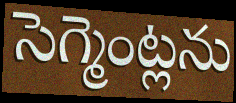
సెగ్మెంట్లను